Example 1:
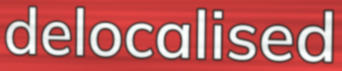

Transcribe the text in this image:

delocalised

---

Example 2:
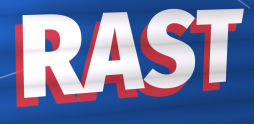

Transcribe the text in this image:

RAST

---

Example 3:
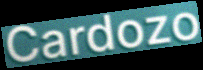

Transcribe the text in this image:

Cardozo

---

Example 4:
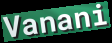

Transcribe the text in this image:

Vanani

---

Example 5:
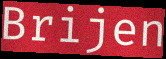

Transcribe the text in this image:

Brijen